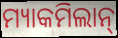
ମ୍ୟାକମିଲାନ୍